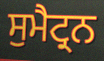
ਸੁਮੈਟ੍ਰਨ